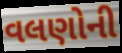
વલણોની